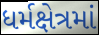
ધર્મક્ષેત્રમાં